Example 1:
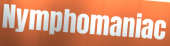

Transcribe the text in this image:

Nymphomaniac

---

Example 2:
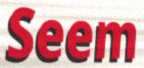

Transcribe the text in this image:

Seem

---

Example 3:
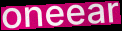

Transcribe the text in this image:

oneear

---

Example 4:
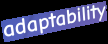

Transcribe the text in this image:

adaptability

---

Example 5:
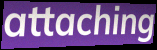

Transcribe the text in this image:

attaching